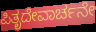
ಪಿತೃದೇವಾರ್ಚನೇ